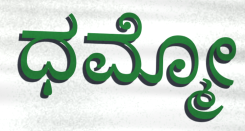
ಧಮ್ಮೋ